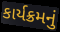
કાર્યક્રમનું